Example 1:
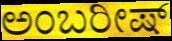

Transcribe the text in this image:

ಅಂಬರೀಷ್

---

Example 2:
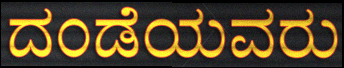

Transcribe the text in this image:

ದಂಡೆಯವರು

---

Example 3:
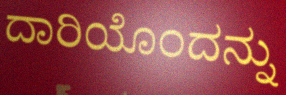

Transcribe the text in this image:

ದಾರಿಯೊಂದನ್ನು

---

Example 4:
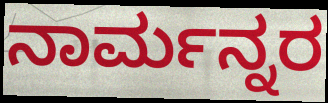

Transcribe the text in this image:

ನಾರ್ಮನ್ನರ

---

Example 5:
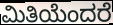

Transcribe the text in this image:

ಮಿತಿಯೆಂದರೆ